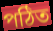
পঠিত